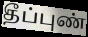
தீப்புண்